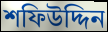
শফিউদ্দিন